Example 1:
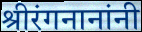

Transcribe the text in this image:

श्रीरंगनानांनी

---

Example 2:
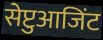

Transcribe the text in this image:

सेप्टुआजिंट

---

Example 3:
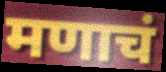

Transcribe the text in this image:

मणाचं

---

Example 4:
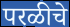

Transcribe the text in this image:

परळीचे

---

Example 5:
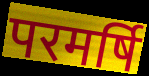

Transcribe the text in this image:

परमर्षि